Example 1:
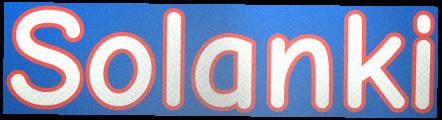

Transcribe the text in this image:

Solanki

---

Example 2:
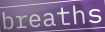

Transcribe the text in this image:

breaths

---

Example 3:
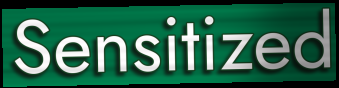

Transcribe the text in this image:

Sensitized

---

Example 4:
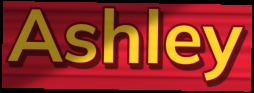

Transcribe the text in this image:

Ashley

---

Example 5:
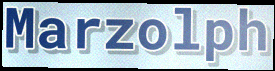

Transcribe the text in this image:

Marzolph